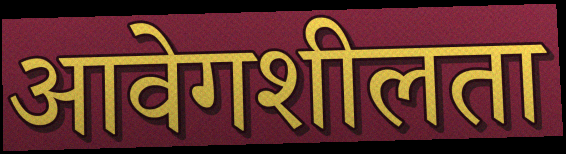
आवेगशीलता